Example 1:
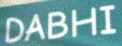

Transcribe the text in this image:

DABHI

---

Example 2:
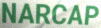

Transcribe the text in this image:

NARCAP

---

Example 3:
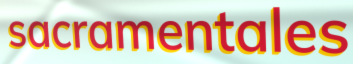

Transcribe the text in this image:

sacramentales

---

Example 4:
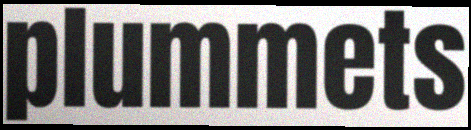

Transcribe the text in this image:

plummets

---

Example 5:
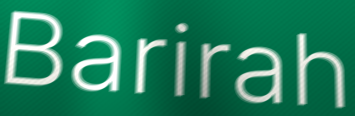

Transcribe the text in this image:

Barirah